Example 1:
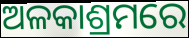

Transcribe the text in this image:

ଅଳକାଶ୍ରମରେ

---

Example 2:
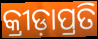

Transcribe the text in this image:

କ୍ରୀଡ଼ାପ୍ରତି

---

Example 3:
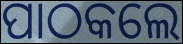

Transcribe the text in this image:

ପାଠକଲେ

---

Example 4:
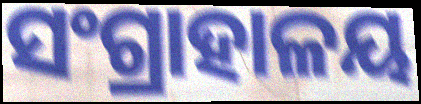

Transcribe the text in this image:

ସଂଗ୍ରାହାଳୟ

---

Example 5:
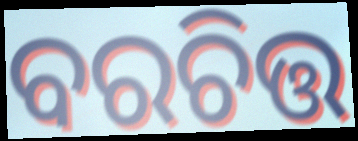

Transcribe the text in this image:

ବରଚିତ୍ତ